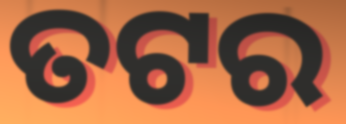
ତଟର